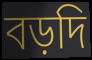
বড়দি